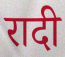
रादी